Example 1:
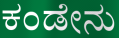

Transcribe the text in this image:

ಕಂಡೇನು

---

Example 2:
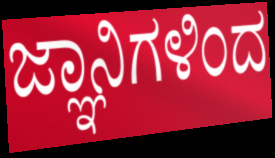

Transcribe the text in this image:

ಜ್ಞಾನಿಗಳಿಂದ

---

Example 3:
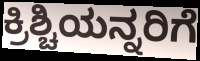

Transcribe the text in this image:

ಕ್ರಿಶ್ಚಿಯನ್ನರಿಗೆ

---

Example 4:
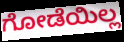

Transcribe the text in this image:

ಗೋಡೆಯಿಲ್ಲ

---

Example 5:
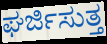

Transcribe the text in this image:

ಘರ್ಜಿಸುತ್ತ